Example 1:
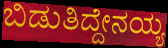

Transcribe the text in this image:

ಬಿಡುತಿದ್ದೇನಯ್ಯ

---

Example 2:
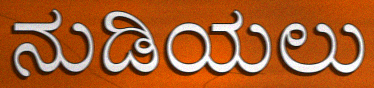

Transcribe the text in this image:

ನುಡಿಯಲು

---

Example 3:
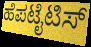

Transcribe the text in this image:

ಹೆಪಟೈಟಿಸ್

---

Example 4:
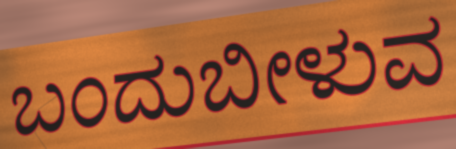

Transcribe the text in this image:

ಬಂದುಬೀಳುವ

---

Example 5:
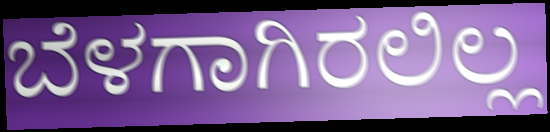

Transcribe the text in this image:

ಬೆಳಗಾಗಿರಲಿಲ್ಲ